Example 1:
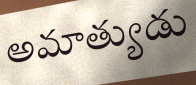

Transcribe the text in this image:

అమాత్యుడు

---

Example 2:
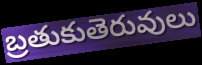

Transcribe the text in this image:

బ్రతుకుతెరువులు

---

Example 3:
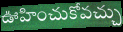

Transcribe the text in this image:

ఊహించుకోవచ్చు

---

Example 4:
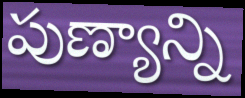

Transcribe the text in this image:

పుణ్యాన్ని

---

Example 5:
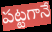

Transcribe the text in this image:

పట్టగానే